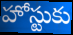
హోస్టుకు